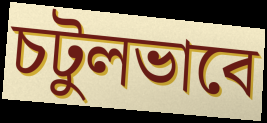
চটুলভাবে